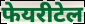
फेयरीटेल